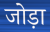
जोड़ा